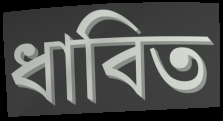
ধাবিত